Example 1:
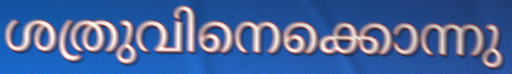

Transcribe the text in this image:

ശത്രുവിനെക്കൊന്നു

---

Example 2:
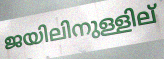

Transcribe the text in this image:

ജയിലിനുള്ളില്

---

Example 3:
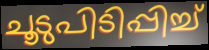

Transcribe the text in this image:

ചൂടുപിടിപ്പിച്ച്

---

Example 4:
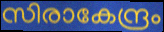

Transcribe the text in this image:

സിരാകേന്ദ്രം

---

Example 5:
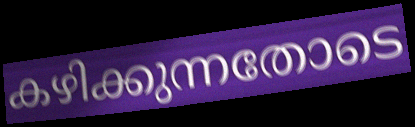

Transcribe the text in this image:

കഴിക്കുന്നതോടെ